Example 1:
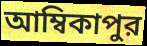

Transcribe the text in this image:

আম্বিকাপুর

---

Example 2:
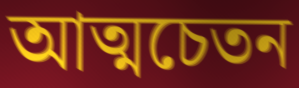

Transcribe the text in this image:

আত্মচেতন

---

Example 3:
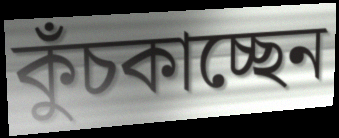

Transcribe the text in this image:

কুঁচকাচ্ছেন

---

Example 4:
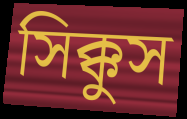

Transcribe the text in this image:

সিক্কুস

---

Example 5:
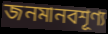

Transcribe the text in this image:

জনমানবশূণ্য